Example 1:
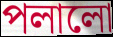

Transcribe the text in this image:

পলালো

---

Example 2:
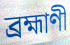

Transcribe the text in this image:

ব্রহ্মাণী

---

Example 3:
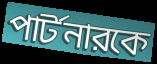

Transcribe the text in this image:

পার্টনারকে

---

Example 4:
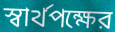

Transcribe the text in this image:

স্বার্থপক্ষের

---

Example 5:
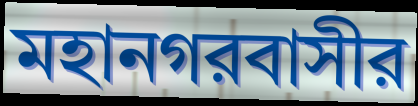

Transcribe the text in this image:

মহানগরবাসীর